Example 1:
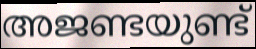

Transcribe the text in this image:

അജണ്ടയുണ്ട്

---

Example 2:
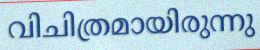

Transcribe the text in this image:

വിചിത്രമായിരുന്നു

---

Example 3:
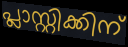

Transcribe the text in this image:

പ്ലാസ്റ്റിക്കിന്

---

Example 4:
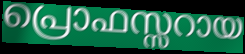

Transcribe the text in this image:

പ്രൊഫസ്സറായ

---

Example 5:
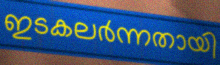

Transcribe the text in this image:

ഇടകലർന്നതായി